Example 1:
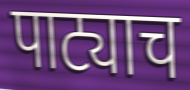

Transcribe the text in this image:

पाट्याच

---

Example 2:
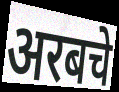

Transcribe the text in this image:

अरबचे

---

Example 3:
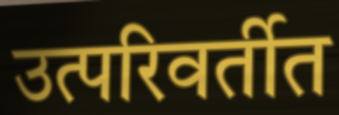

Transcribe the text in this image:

उत्परिवर्तीत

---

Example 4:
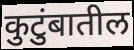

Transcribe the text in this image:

कुटुंबातील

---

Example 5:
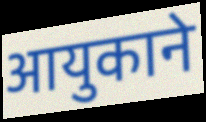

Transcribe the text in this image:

आयुकाने